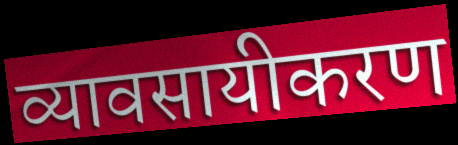
व्यावसायीकरण